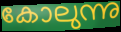
കോലുന്നു